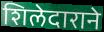
शिलेदाराने